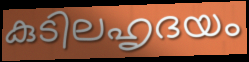
കുടിലഹൃദയം